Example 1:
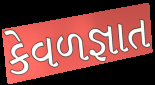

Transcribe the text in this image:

કેવળજ્ઞાત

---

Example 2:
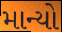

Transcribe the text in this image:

માન્યો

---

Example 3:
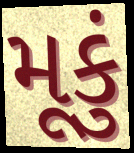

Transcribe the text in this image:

મૂકું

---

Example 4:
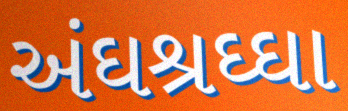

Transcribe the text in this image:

અંઘશ્રઘ્ઘા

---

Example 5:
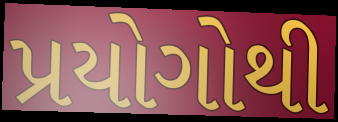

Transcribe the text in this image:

પ્રયોગોથી